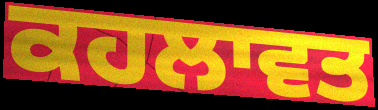
ਕਹਲਾਵਤ